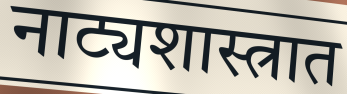
नाट्यशास्त्रात